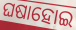
ଘଷାହୋଇ